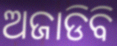
ଅଜାଡିବି